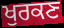
ਖੁਰਕਣ